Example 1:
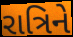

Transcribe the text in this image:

રાત્રિને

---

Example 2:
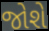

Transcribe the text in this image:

જોશે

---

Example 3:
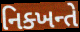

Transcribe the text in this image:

નિક્ખન્તે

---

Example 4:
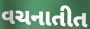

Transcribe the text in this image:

વચનાતીત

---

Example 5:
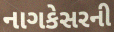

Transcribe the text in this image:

નાગકેસરની